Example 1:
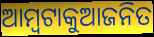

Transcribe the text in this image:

ଆମ୍ବଟାକୁଆଜନିତ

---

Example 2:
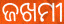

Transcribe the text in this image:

ଜଖମୀ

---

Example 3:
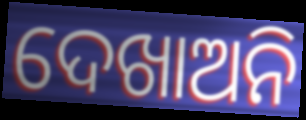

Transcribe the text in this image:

ଦେଖାଅନି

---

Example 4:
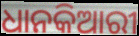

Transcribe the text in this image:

ଧାନକିଆରୀ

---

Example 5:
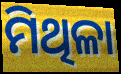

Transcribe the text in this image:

ମିଥିଳା